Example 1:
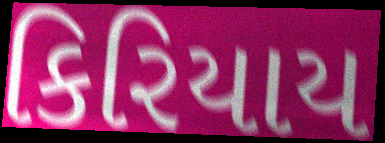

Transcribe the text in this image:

કિરિયાય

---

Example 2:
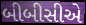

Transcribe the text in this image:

બીબીસીએ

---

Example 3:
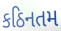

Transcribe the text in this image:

કઠિનતમ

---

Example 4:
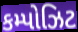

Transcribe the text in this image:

કમ્પોઝિટ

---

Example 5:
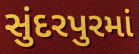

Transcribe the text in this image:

સુંદરપુરમાં